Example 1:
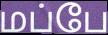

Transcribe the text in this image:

மப்பே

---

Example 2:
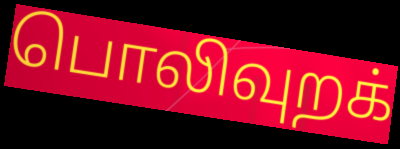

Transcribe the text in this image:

பொலிவுறக்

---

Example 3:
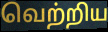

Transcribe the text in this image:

வெற்றிய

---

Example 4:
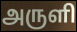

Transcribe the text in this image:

அருளி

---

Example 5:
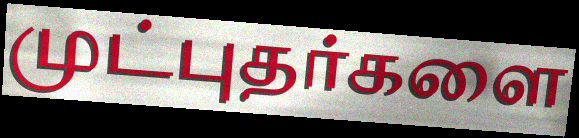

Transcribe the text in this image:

முட்புதர்களை